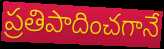
ప్రతిపాదించగానే